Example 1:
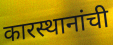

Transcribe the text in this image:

कारस्थानांची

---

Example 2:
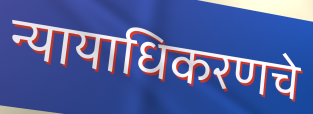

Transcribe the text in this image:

न्यायाधिकरणचे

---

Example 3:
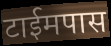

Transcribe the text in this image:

टाईमपास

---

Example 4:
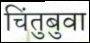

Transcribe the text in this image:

चिंतुबुवा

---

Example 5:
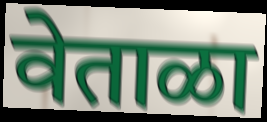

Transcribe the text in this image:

वेताळा